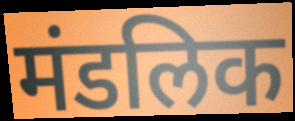
मंडलिक